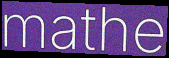
mathe